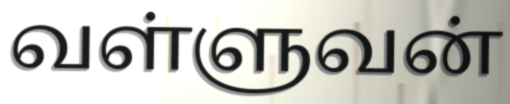
வள்ளுவன்